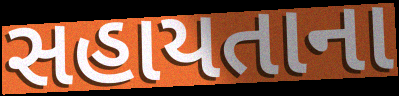
સહાયતાના